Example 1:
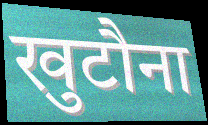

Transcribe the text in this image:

खुटौना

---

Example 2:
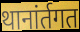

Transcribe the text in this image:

थानांर्तगत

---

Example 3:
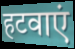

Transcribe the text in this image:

हटवाएं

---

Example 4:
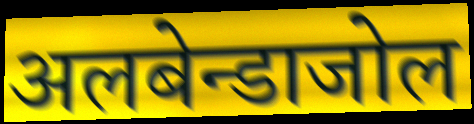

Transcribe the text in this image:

अलबेन्डाजोल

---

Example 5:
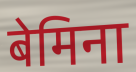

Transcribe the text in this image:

बेमिना